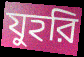
যুহরি